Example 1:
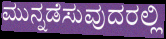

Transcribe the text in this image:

ಮುನ್ನಡೆಸುವುದರಲ್ಲಿ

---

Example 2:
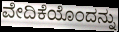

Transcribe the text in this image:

ವೇದಿಕೆಯೊಂದನ್ನು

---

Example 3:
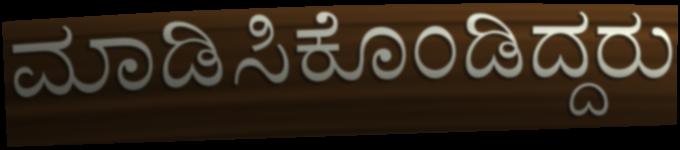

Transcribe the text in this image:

ಮಾಡಿಸಿಕೊಂಡಿದ್ದರು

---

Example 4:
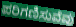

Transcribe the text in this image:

ಪರಿಗಣಿಸುವೆವು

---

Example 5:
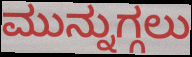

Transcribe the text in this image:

ಮುನ್ನುಗ್ಗಲು